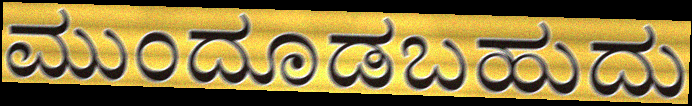
ಮುಂದೂಡಬಹುದು